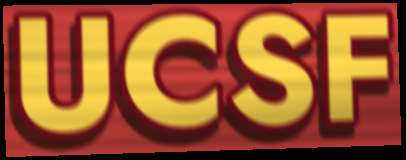
UCSF